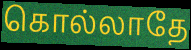
கொல்லாதே